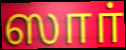
ஸார்